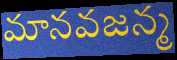
మానవజన్మ